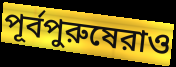
পূর্বপুরুষেরাও